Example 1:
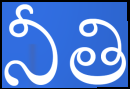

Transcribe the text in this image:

నీతి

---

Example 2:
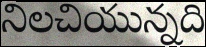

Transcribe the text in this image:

నిలచియున్నది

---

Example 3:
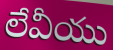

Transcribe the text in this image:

లేవీయు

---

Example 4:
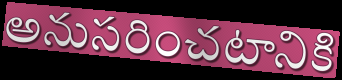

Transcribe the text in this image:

అనుసరించటానికి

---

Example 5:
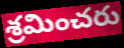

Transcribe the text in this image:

శ్రమించరు